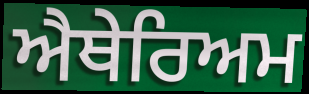
ਐਥੇਰਿਅਮ